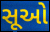
સૂઓ